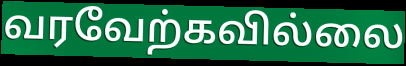
வரவேற்கவில்லை